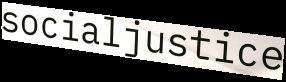
socialjustice